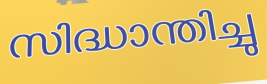
സിദ്ധാന്തിച്ചു